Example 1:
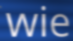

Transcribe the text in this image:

wie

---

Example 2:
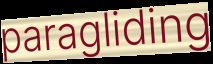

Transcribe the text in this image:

paragliding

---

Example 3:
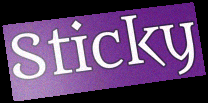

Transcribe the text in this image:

Sticky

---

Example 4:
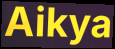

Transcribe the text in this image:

Aikya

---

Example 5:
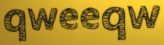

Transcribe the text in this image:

qweeqw